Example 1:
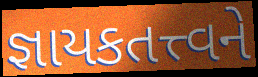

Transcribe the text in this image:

જ્ઞાયકતત્ત્વને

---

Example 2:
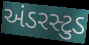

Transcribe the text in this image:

અંડરસ્ટુડ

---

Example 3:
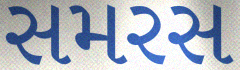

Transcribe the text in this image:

સમરસ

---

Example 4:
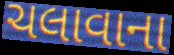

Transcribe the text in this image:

ચલાવાના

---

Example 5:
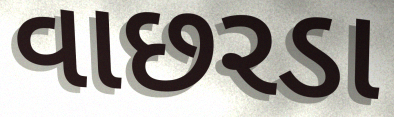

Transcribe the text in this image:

વાછરડા